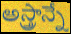
అస్త్రాన్నే